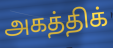
அகத்திக்